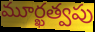
మూర్ఖత్వపు